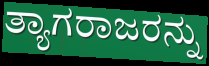
ತ್ಯಾಗರಾಜರನ್ನು